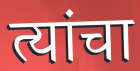
त्‍यांचा